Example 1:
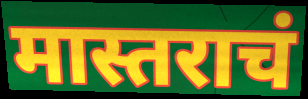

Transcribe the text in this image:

मास्तराचं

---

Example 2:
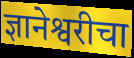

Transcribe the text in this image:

ज्ञानेश्वरीचा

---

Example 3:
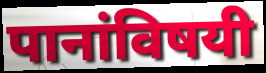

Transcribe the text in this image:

पानांविषयी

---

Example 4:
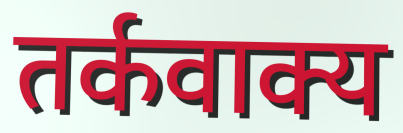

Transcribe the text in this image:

तर्कवाक्य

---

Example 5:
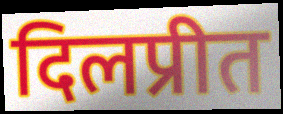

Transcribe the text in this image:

दिलप्रीत